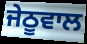
ਜੇਠੂਵਾਲ